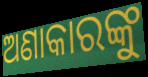
ଅଣାକାରଙ୍କୁ